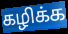
கழிக்க